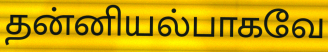
தன்னியல்பாகவே